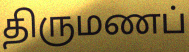
திருமணப்